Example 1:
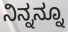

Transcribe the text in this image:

ನಿನ್ನನ್ನೂ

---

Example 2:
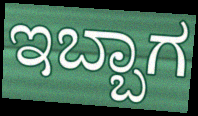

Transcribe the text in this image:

ಇಬ್ಬಾಗ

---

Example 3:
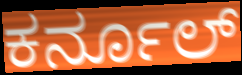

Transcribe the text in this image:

ಕರ್ನೂಲ್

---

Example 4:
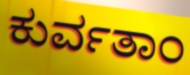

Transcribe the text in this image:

ಕುರ್ವತಾಂ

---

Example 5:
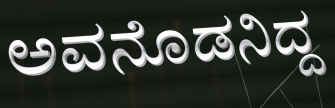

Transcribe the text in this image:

ಅವನೊಡನಿದ್ದ